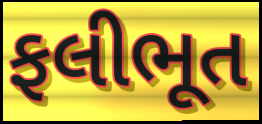
ફલીભૂત